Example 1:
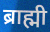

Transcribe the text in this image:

ब्राह्मी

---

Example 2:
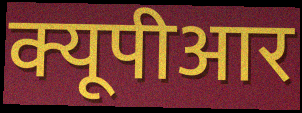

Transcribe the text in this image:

क्यूपीआर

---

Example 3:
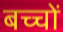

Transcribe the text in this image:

बच्चों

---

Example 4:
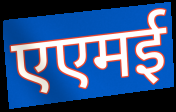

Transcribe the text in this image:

एएमई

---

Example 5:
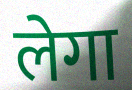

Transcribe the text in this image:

लेगा